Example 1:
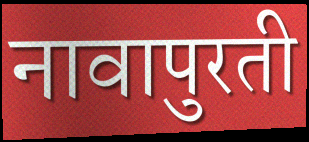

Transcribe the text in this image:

नावापुरती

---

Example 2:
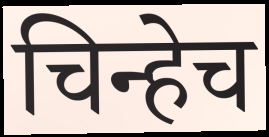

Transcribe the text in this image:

चिन्हेच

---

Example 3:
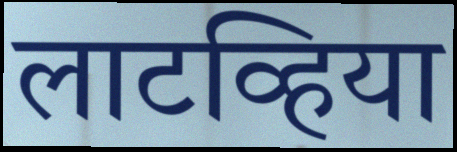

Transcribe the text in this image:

लाटव्हिया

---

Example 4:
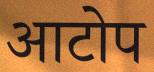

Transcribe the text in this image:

आटोप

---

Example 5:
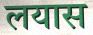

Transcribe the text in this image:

लयास